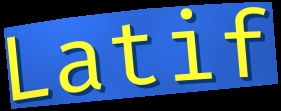
Latif